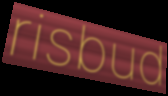
risbud